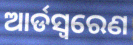
ଆର୍ଡସ୍ଵରେଣ